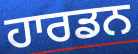
ਹਾਰਡਨ